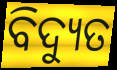
ବିଦ୍ୟୁତ